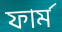
ফাৰ্ম